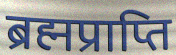
ब्रह्मप्राप्ति